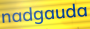
nadgauda